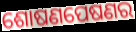
ଶୋଷଣପେଷଣର